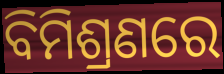
ବିମିଶ୍ରଣରେ